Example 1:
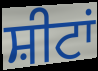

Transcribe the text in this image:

ਸ਼ੀਟਾਂ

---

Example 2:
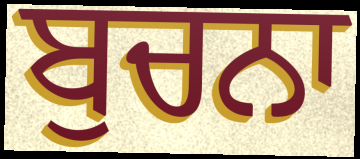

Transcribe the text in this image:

ਬੁਚਨਾ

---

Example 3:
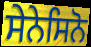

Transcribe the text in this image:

ਸੇਨੇਸਿਨੋ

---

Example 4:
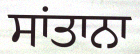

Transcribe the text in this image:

ਸਾਂਤਾਨਾ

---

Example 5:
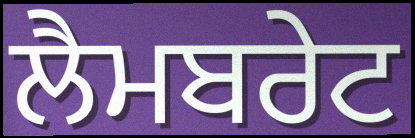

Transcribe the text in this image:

ਲੈਮਬਰੇਟ